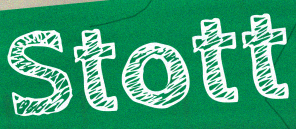
Stott